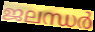
ജലന്ധർ